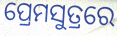
ପ୍ରେମସୁତ୍ରରେ